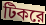
টিকরে